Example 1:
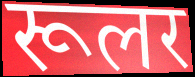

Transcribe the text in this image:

रूलर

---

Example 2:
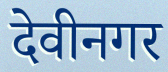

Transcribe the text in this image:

देवीनगर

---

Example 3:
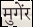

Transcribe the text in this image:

मुगेंर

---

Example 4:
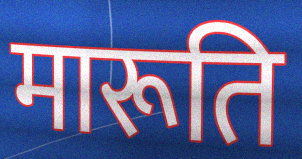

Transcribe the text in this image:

मारूति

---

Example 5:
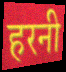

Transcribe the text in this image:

हरनी